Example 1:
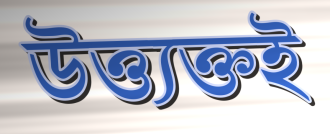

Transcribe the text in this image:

উত্ত্যক্তই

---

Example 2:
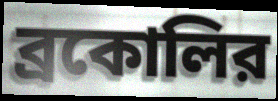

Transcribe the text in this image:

ব্রকোলির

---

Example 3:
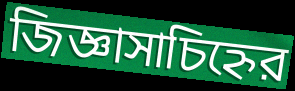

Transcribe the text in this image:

জিজ্ঞাসাচিহ্নের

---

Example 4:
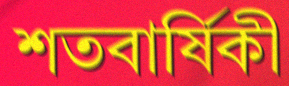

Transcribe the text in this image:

শতবার্ষিকী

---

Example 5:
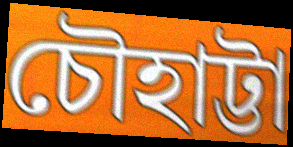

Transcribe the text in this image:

চৌহাট্টা